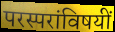
परस्परांविषयीं